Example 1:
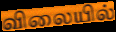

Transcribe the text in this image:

விலையில்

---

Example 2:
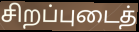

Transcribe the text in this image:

சிறப்புடைத்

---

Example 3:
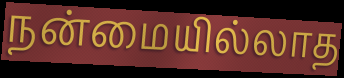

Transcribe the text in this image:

நன்மையில்லாத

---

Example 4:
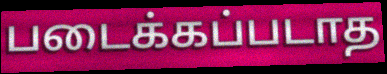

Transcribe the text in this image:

படைக்கப்படாத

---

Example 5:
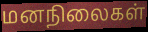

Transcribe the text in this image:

மனநிலைகள்